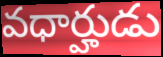
వధార్హుడు